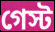
গেস্ট